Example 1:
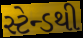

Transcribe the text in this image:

સ્ટેન્ડથી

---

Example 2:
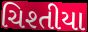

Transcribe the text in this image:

ચિશ્તીયા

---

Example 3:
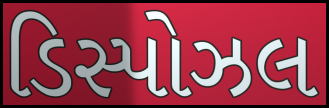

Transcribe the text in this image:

ડિસ્પોઝલ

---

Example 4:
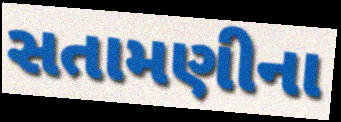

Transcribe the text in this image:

સતામણીના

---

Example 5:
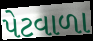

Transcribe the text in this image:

પેટવાળા